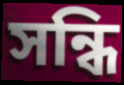
সন্ধি